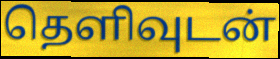
தெளிவுடன்